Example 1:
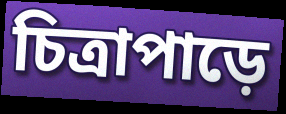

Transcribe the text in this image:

চিত্রাপাড়ে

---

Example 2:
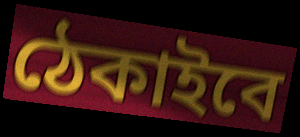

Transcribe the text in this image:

ঠেকাইবে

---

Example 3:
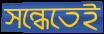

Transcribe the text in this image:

সন্ধেতেই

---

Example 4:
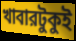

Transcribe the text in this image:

খাবারটুকুই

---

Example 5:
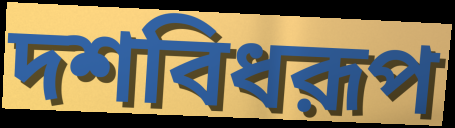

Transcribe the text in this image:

দশবিধরূপ